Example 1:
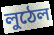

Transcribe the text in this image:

লুঠেল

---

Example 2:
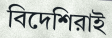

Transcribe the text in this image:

বিদেশিরাই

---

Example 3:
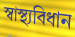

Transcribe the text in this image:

স্বাস্থ্যবিধান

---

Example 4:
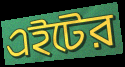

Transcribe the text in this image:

এইটের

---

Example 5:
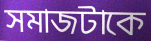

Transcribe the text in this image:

সমাজটাকে